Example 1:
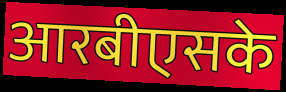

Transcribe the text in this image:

आरबीएसके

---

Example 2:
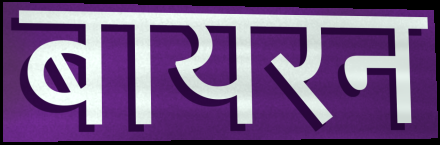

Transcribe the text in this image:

बायरन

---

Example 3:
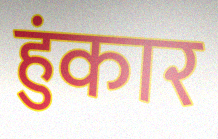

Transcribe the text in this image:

हुंकार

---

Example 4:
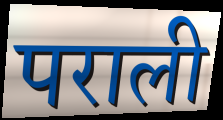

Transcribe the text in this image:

पराली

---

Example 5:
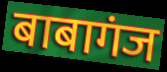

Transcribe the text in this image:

बाबागंज